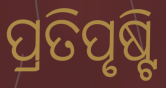
ପ୍ରତିପୃଷ୍ଟି